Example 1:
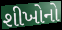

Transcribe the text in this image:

શીખોનો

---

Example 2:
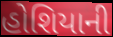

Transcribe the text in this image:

હોશિયાની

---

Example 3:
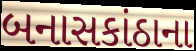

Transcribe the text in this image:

બનાસકાંઠાના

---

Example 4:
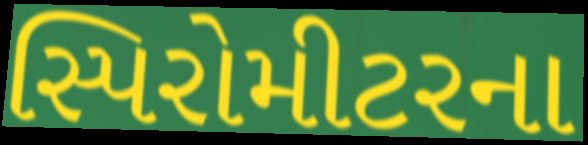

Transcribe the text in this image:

સ્પિરોમીટરના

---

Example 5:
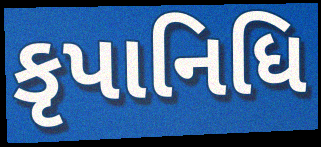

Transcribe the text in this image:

કૃપાનિધિ